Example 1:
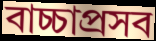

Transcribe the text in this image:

বাচ্চাপ্রসব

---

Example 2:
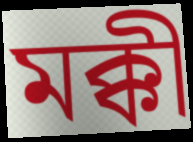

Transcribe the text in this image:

মক্কী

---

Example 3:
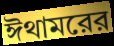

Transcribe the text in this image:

ঈথামরের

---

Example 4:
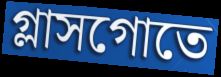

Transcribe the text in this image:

গ্লাসগোতে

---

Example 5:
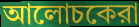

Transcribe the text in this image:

আলোচকেরা